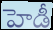
హెడీ